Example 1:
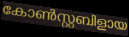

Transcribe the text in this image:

കോൺസ്റ്റബിളായ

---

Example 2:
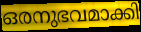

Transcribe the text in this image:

ഒരനുഭവമാക്കി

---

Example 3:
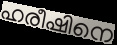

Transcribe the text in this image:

ഹരീഷിനെ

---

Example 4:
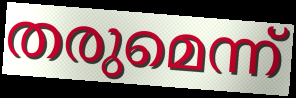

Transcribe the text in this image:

തരുമെന്ന്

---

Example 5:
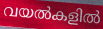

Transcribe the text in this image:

വയൽകളിൽ